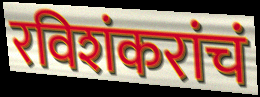
रविशंकरांचं